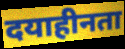
दयाहीनता